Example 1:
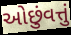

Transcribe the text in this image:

ઓછુંવત્તું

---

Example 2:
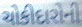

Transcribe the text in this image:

ચોકીદારોની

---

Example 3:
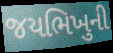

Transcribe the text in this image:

જયભિખુની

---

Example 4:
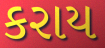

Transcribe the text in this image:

કરાય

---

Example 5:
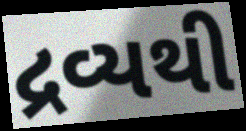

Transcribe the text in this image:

દ્રવ્યથી